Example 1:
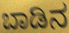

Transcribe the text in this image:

ಬಾಡಿನ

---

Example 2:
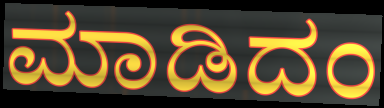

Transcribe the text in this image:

ಮಾಡಿದಂ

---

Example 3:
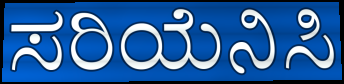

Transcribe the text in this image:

ಸರಿಯೆನಿಸಿ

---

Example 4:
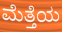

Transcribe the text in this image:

ಮೆತ್ತೆಯ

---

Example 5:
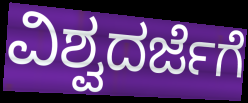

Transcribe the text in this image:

ವಿಶ್ವದರ್ಜೆಗೆ